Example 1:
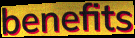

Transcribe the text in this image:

benefits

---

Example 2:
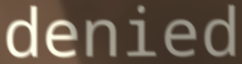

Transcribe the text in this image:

denied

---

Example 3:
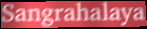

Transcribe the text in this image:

Sangrahalaya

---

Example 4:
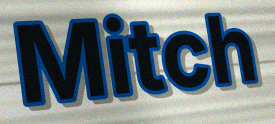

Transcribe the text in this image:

Mitch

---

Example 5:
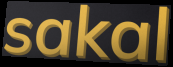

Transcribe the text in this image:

sakal